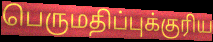
பெருமதிப்புக்குரிய